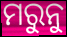
ମରୁନୁ